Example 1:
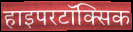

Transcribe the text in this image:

हाइपरटॉक्सिक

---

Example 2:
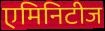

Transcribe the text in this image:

एमिनिटीज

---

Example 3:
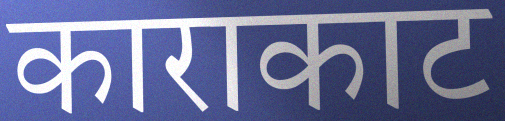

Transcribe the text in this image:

काराकाट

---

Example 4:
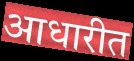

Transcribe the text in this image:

आधारीत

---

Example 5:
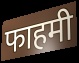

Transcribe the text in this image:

फाहमी